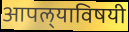
आपल्याविषयी